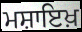
ਮਸ਼ਾਇਖ਼